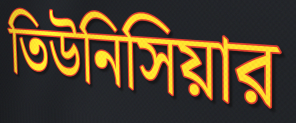
তিউনিসিয়ার